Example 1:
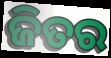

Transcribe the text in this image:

ଜିତର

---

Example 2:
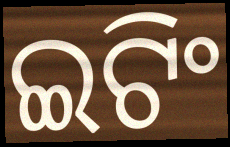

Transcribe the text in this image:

ଇଟିଂ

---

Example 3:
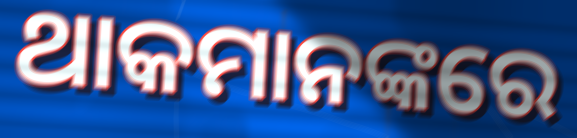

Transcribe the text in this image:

ଥାକମାନଙ୍କରେ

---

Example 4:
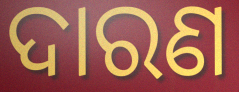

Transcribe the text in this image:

ଦାରଣ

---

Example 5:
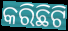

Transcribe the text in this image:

କରିଛିଟି